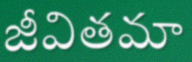
జీవితమా